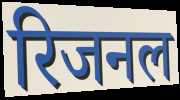
रिजनल